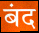
बंद